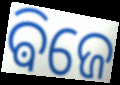
ଵିଜେ